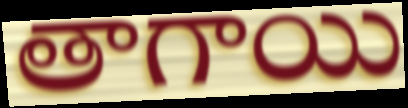
తాగాయి